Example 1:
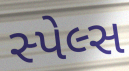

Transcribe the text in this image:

સ્પેલ્સ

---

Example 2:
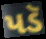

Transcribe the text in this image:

પડૅ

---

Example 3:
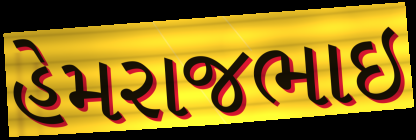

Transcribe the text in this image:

હેમરાજભાઇ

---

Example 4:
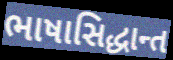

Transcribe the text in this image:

ભાષાસિદ્ધાન્ત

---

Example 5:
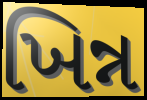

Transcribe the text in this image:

ખિન્ન